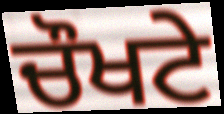
ਚੌਖਟੇ